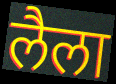
लैला